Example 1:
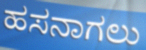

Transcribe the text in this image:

ಹಸನಾಗಲು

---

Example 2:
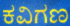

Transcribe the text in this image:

ಕವಿಗಣ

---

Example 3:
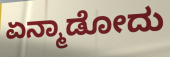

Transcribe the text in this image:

ಏನ್ಮಾಡೋದು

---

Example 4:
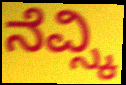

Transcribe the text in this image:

ನೆವ್ಸ್ಕಿ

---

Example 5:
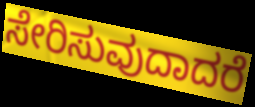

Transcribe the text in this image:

ಸೇರಿಸುವುದಾದರೆ